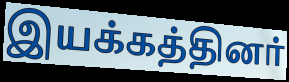
இயக்கத்தினர்